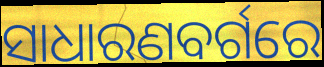
ସାଧାରଣବର୍ଗରେ